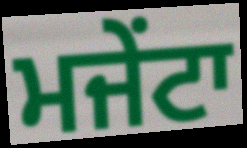
ਮਜੇਂਟਾ